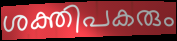
ശക്തിപകരും